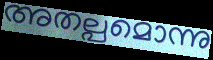
അതല്പമൊന്നു